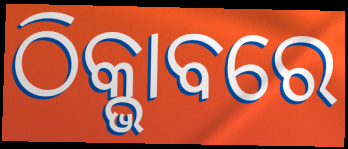
ଠିକ୍ଭାବରେ